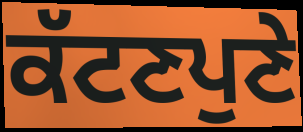
ਕੱਟਣਪੁਣੇ